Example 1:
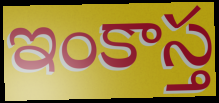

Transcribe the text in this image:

ఇంకాస్త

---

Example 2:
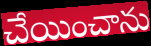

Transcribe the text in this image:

చేయించాను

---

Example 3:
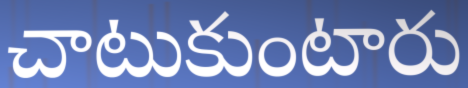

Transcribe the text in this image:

చాటుకుంటారు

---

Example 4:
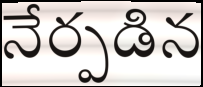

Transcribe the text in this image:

నేర్పడిన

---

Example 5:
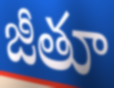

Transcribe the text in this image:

జీతూ